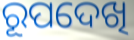
ରୂପଦେଖି